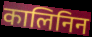
कालिनिन